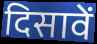
दिसावें